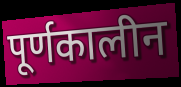
पूर्णकालीन